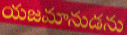
యజమానుడను